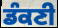
ਡੰਕਣੀ